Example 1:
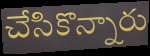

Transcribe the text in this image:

చేసికొన్నారు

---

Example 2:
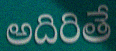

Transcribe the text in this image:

అదిరితే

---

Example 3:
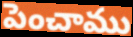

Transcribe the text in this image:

పెంచాము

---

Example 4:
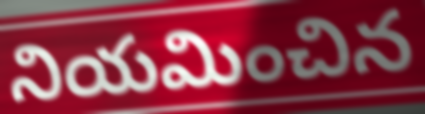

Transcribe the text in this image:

నియమించిన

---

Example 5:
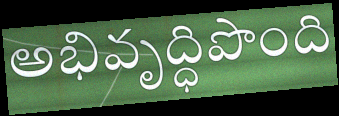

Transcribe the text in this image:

అభివృద్ధిపొంది